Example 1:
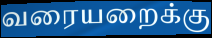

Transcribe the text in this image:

வரையறைக்கு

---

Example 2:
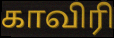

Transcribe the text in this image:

காவிரி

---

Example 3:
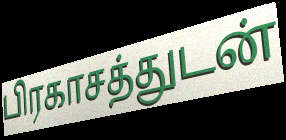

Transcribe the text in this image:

பிரகாசத்துடன்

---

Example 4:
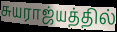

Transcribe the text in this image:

சுயராஜ்யத்தில்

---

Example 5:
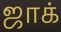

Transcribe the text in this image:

ஜாக்